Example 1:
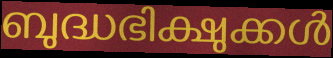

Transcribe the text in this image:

ബുദ്ധഭിക്ഷുക്കൾ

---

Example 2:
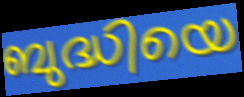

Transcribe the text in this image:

ബുദ്ധിയെ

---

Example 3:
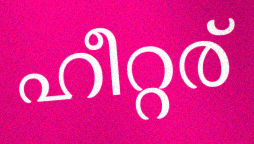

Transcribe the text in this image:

ഹീറ്റര്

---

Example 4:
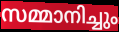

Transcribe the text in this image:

സമ്മാനിച്ചും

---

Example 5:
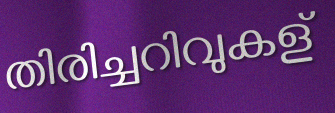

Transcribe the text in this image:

തിരിച്ചറിവുകള്